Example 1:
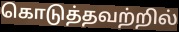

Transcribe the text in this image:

கொடுத்தவற்றில்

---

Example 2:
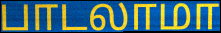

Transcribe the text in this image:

பாடலாமா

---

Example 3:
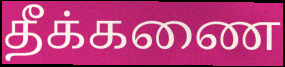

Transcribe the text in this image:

தீக்கணை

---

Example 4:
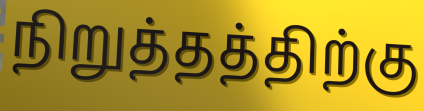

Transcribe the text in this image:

நிறுத்தத்திற்கு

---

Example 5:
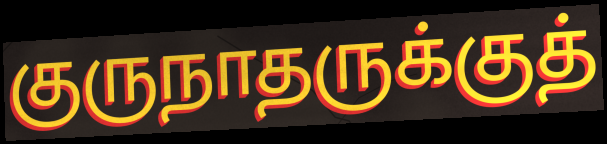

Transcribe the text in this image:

குருநாதருக்குத்